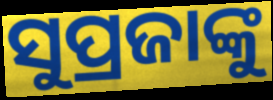
ସୁପ୍ରଜାଙ୍କୁ